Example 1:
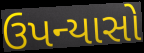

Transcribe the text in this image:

ઉપન્યાસો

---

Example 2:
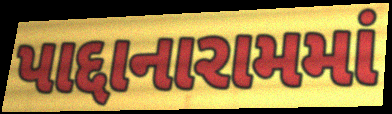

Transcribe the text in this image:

પાદ્દાનારામમાં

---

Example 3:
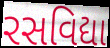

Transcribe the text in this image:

રસવિદ્યા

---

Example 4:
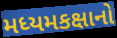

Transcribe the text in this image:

મધ્યમકક્ષાનો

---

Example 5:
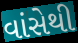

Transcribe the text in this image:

વાંસેથી